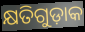
କ୍ଷତିଗୁଡ଼ାକ